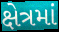
ક્ષેત્રમાં